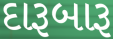
દારૂબારૂ